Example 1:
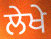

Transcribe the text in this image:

ਲੇਖੇ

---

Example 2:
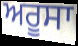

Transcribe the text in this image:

ਅਰੂਸਾ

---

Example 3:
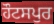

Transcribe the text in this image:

ਹੌਟਸਪੁਰ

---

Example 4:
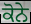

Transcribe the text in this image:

ਕੋਨੇ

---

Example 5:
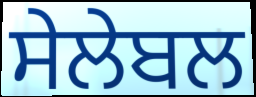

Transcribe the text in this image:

ਸੇਲੇਬਲ